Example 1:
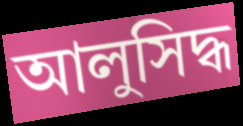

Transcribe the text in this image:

আলুসিদ্ধ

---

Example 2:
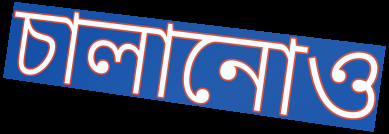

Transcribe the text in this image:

চালানোও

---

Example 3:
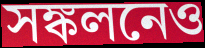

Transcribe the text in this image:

সঙ্কলনেও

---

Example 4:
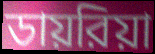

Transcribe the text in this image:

ডায়রিয়া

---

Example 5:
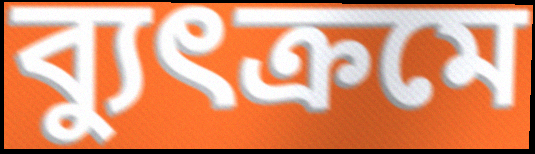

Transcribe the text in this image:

ব্যুৎক্রমে